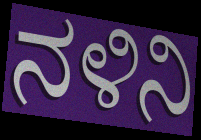
ನಳಿನಿ